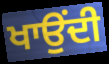
ਖਾਉਂਦੀ